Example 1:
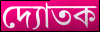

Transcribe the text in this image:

দ্যোতক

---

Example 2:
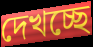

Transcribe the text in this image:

দেখচ্ছে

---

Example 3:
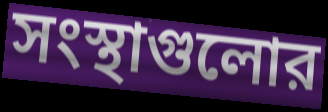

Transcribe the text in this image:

সংস্থাগুলোর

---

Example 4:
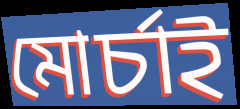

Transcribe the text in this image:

মোর্চাই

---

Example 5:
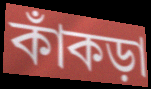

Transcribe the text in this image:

কাঁকড়া